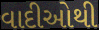
વાદીઓથી